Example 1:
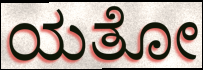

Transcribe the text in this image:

ಯತೋ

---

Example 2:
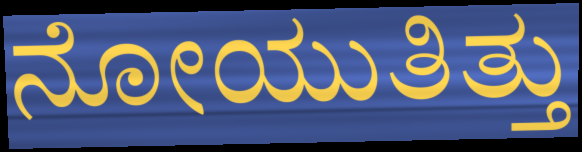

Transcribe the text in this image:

ನೋಯುತಿತ್ತು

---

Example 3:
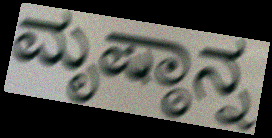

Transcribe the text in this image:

ಮೃಷ್ಠಾನ್ನ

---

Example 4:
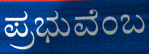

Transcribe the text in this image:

ಪ್ರಭುವೆಂಬ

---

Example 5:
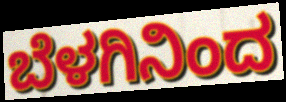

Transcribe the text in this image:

ಬೆಳಗಿನಿಂದ